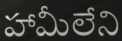
హామీలేని